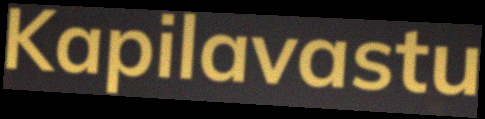
Kapilavastu